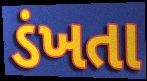
ડંખતા